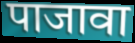
पाजावा